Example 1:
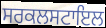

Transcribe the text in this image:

ਸਰਕਲਸਟਾਇਲ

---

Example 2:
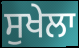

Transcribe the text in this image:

ਸੁਖੇਲਾ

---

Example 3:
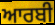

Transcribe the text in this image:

ਆਰਬੀ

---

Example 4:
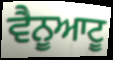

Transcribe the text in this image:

ਵੈਨੂਆਟੂ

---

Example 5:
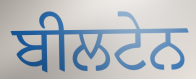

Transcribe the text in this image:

ਬੀਲਟੇਨ